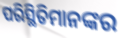
ପରିସ୍ଥିତିମାନଙ୍କର